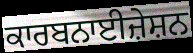
ਕਾਰਬਨਾਈਜ਼ੇਸ਼ਨ